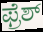
ಫ್ರೆಶ್